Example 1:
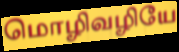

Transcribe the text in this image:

மொழிவழியே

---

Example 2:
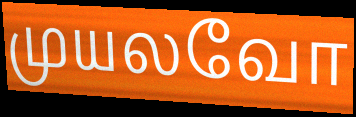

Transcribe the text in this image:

முயலவோ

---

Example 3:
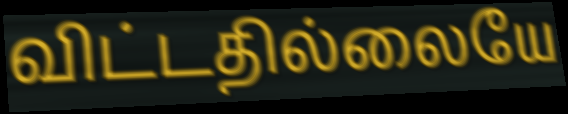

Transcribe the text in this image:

விட்டதில்லையே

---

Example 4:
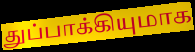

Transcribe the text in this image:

துப்பாக்கியுமாக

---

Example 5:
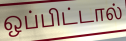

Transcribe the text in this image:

ஒப்பிட்டால்